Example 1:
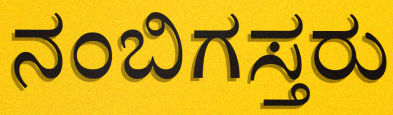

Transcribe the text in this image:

ನಂಬಿಗಸ್ತರು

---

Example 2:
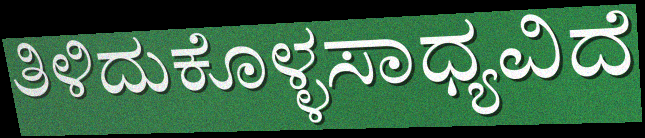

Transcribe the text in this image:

ತಿಳಿದುಕೊಳ್ಳಸಾಧ್ಯವಿದೆ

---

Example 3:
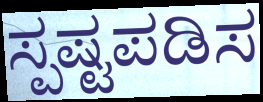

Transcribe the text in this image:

ಸ್ಪಷ್ಟಪಡಿಸ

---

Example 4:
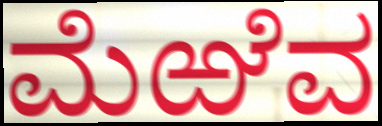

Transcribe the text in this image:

ಮೆಱೆವ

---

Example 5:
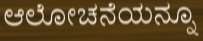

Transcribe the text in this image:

ಆಲೋಚನೆಯನ್ನೂ